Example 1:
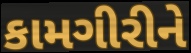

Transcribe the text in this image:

કામગીરીને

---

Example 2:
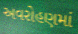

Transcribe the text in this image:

અવરોહણમાં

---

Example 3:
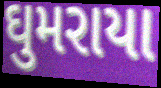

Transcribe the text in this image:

ઘુમરાયા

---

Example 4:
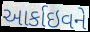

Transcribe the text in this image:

આર્કાઇવને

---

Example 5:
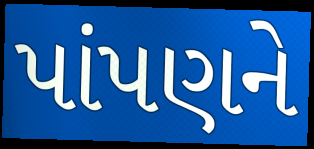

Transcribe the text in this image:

પાંપણને